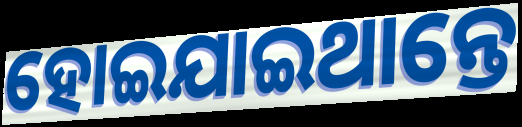
ହୋଇଯାଇଥାନ୍ତେ